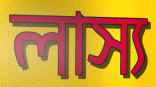
লাস্য